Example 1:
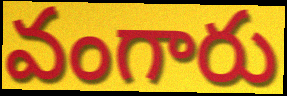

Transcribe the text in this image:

వంగారు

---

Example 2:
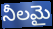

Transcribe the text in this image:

నీలమై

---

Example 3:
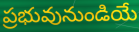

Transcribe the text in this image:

ప్రభువునుండియే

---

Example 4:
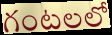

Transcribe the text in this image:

గంటలలో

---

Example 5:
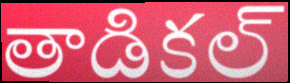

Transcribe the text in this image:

తాడికల్